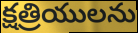
క్షత్రియులను